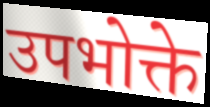
उपभोक्ते